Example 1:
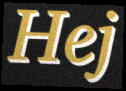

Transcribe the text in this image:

Hej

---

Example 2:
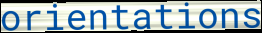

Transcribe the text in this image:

orientations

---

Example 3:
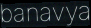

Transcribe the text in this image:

banavya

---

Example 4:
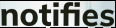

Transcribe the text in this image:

notifies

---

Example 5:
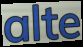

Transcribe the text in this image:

alte